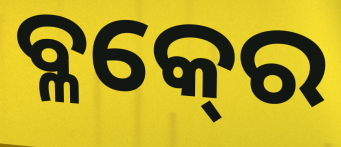
ବ୍ଳକ୍‍ରେ